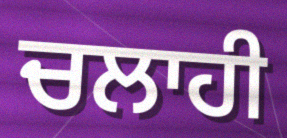
ਚਲਾਹੀ